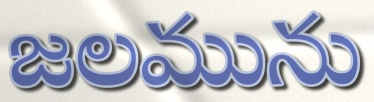
జలమును